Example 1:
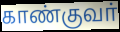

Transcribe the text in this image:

காண்குவர்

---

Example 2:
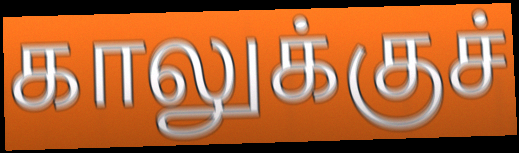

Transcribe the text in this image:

காலுக்குச்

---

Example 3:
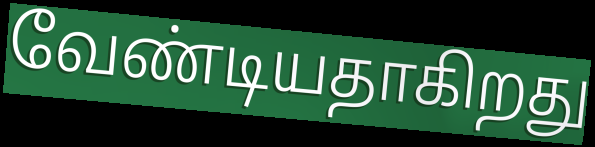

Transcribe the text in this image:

வேண்டியதாகிறது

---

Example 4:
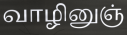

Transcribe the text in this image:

வாழினுஞ்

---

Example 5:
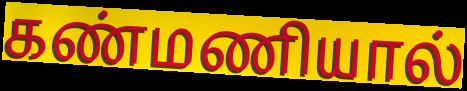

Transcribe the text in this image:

கண்மணியால்